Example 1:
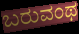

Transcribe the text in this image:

ಬರುವಂಥ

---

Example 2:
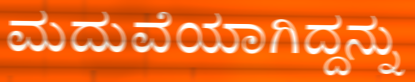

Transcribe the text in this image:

ಮದುವೆಯಾಗಿದ್ದನ್ನು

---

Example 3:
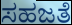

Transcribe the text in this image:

ಸಹಜತೆ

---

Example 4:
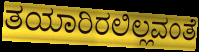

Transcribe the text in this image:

ತಯಾರಿರಲಿಲ್ಲವಂತೆ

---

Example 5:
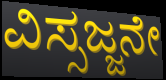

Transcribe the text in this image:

ವಿಸ್ಸಜ್ಜನೇ